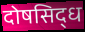
दोषसिद्ध